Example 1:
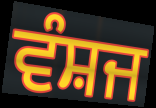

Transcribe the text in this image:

ਵੰਸ਼ਜ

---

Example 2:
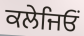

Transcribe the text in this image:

ਕਲੇਜਿਓਂ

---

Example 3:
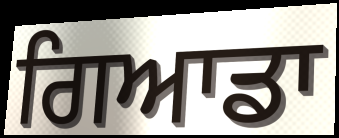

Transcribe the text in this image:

ਗਿਆਡਾ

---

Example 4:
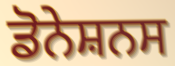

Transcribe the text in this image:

ਡੋਨੇਸ਼ਨਸ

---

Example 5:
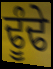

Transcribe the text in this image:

ਢੂੰਢੇ